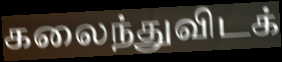
கலைந்துவிடக்